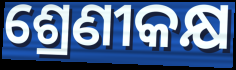
ଶ୍ରେଣୀକକ୍ଷ